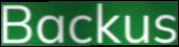
Backus